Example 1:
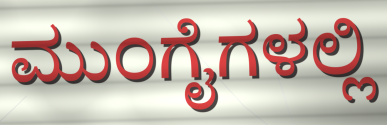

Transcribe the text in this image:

ಮುಂಗೈಗಳಲ್ಲಿ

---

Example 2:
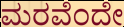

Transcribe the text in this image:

ಮರವೆಂದೇ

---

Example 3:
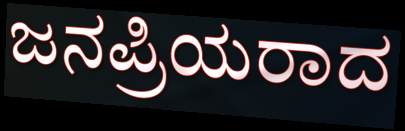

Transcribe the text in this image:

ಜನಪ್ರಿಯರಾದ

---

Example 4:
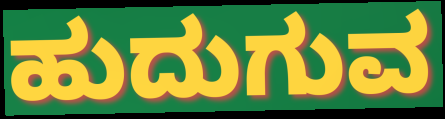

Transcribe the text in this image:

ಹುದುಗುವ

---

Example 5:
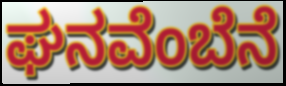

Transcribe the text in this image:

ಘನವೆಂಬೆನೆ